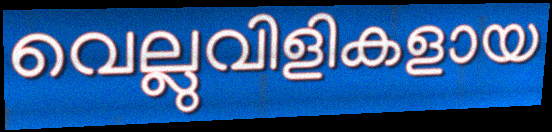
വെല്ലുവിളികളായ